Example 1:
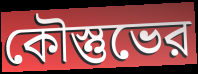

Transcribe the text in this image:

কৌস্তুভের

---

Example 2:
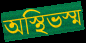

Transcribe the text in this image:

অস্থিভস্ম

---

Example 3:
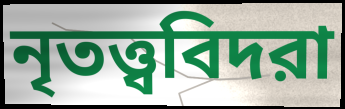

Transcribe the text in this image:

নৃতত্ত্ববিদরা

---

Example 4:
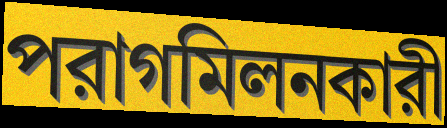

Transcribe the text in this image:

পরাগমিলনকারী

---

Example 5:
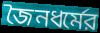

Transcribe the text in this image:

জৈনধর্মের